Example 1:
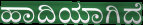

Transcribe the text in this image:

ಹಾದಿಯಾಗಿದೆ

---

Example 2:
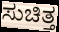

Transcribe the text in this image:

ಸುಚಿತ್ತ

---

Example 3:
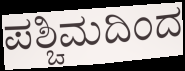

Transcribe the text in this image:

ಪಶ್ಚಿಮದಿಂದ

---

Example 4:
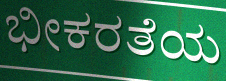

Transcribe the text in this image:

ಭೀಕರತೆಯ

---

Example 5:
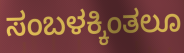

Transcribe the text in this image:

ಸಂಬಳಕ್ಕಿಂತಲೂ